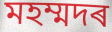
মহম্মদৰ